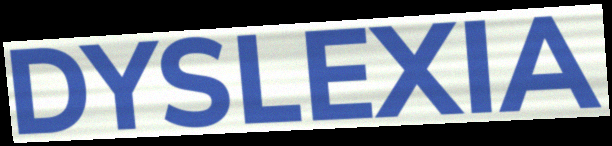
DYSLEXIA